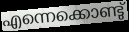
എന്നെക്കൊണ്ടു്